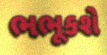
ભભૂકશે